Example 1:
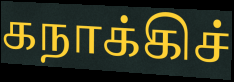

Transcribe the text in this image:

கநாக்கிச்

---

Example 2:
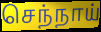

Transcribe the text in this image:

செந்நாய்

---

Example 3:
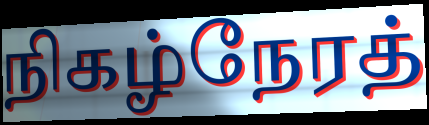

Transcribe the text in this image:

நிகழ்நேரத்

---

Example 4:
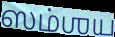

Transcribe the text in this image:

ஸம்ஶய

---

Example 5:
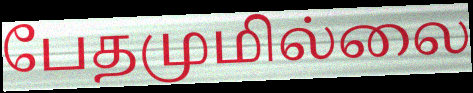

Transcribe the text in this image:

பேதமுமில்லை